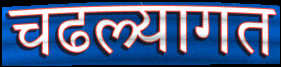
चढल्यागत